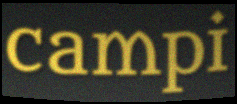
campi